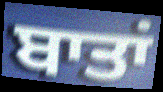
ਬਾਤਾਂ